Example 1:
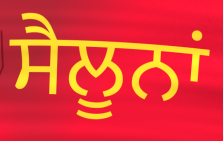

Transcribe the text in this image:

ਸੈਲੂਨਾਂ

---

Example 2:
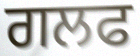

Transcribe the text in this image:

ਗਲਫ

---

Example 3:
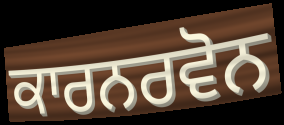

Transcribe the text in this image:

ਕਾਰਨਰਵੋਨ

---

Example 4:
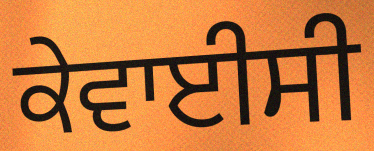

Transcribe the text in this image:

ਕੇਵਾਈਸੀ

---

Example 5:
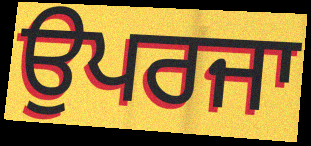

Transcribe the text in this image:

ਉਪਰਜਾ